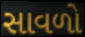
સાવળો